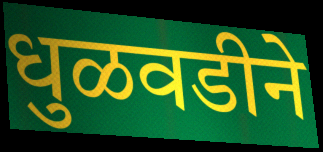
धुळवडीने